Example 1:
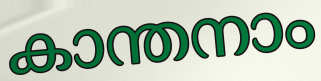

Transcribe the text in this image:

കാന്തനാം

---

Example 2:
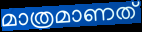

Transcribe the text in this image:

മാത്രമാണത്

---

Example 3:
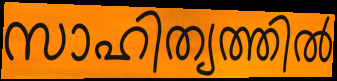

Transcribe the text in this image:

സാഹിത്യത്തിൽ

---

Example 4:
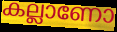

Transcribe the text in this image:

കല്ലാണോ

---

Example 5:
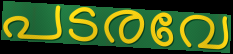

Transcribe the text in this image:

പടരവേ